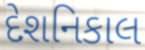
દેશનિકાલ